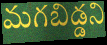
మగబిడ్డని